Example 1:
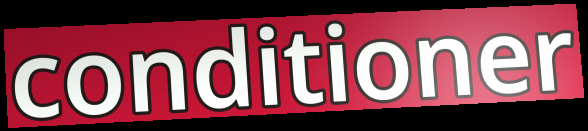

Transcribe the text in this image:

conditioner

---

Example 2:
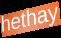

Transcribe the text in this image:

hethay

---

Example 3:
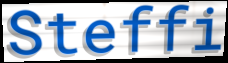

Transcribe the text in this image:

Steffi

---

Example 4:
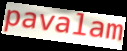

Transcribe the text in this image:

pavalam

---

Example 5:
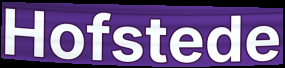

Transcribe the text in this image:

Hofstede